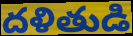
దళితుడి